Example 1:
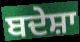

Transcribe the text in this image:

ਬਦੇਸ਼ਾ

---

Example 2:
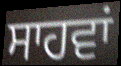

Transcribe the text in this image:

ਸਾਹਵਾਂ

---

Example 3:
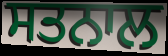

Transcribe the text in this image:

ਸਤਨਾਲ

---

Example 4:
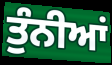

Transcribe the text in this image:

ਤੁੰਨੀਆਂ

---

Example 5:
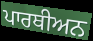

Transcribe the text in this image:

ਪਾਰਥੀਅਨ